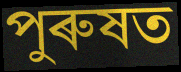
পুৰুষত